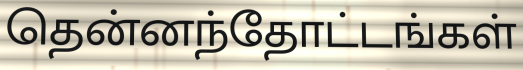
தென்னந்தோட்டங்கள்